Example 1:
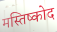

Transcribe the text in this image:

मस्तिष्कोद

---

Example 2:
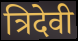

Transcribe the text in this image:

त्रिदेवी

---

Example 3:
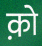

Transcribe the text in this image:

क़ो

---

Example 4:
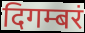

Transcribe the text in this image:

दिगम्बरं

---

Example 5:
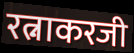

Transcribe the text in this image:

रत्नाकरजी